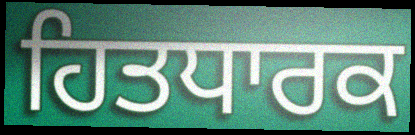
ਹਿਤਧਾਰਕ